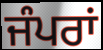
ਜੰਪਰਾਂ